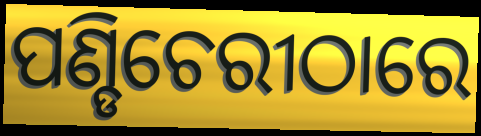
ପଣ୍ଡିଚେରୀଠାରେ